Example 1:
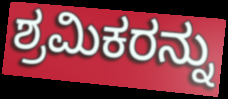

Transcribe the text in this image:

ಶ್ರಮಿಕರನ್ನು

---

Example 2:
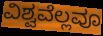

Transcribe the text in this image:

ವಿಶ್ವವೆಲ್ಲವೂ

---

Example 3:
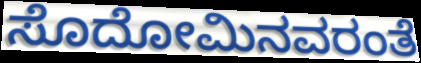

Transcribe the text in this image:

ಸೊದೋಮಿನವರಂತೆ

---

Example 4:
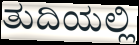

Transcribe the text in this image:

ತುದಿಯಲ್ಲಿ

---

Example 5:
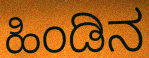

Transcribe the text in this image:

ಹಿಂಡಿನ